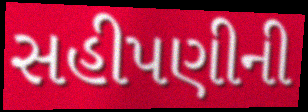
સહીપણીની